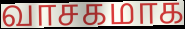
வாசகமாக